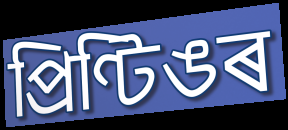
প্ৰিণ্টিঙৰ